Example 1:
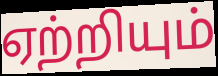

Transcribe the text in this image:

ஏற்றியும்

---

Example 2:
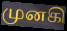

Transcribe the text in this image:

முனகி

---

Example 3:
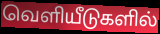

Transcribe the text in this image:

வெளியீடுகளில்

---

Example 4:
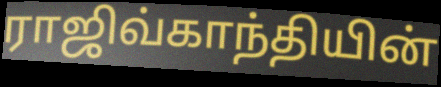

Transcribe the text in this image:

ராஜிவ்காந்தியின்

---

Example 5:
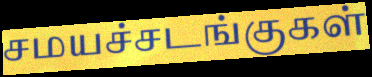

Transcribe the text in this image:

சமயச்சடங்குகள்